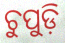
ଚୁପୁଡ଼ି